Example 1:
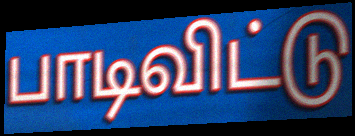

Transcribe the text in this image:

பாடிவிட்டு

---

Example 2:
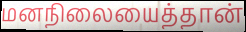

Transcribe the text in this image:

மனநிலையைத்தான்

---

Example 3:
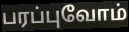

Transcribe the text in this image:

பரப்புவோம்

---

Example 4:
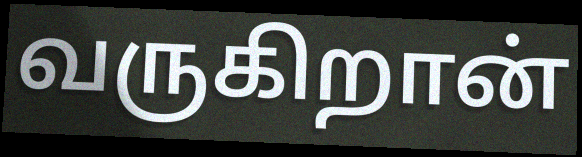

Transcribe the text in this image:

வருகிறான்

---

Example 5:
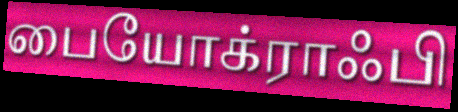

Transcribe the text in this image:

பையோக்ராஃபி